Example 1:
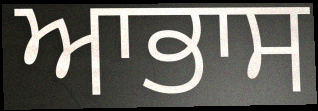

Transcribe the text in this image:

ਆਭਾਸ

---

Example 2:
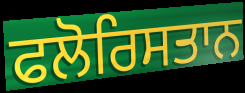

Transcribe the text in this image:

ਫਲੋਰਿਸਤਾਨ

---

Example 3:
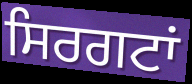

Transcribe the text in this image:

ਸਿਰਗਟਾਂ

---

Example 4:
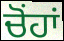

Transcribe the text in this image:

ਚੋਂਹਾਂ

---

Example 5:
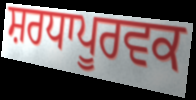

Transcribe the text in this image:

ਸ਼ਰਧਾਪੂਰਵਕ